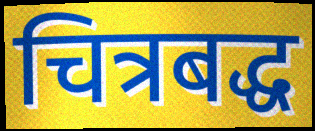
चित्रबद्ध